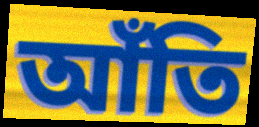
আঁতি